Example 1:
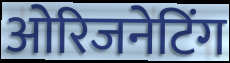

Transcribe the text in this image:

ओरिजनेटिंग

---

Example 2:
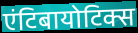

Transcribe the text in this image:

एंटिबायोटिक्स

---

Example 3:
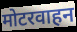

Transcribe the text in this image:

मोटरवाहन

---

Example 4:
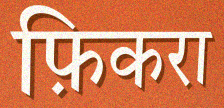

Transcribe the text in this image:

फ़िकरा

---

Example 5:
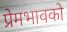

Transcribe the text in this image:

प्रेमभावको